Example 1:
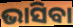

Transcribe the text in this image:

ଭାସିବା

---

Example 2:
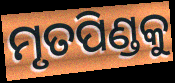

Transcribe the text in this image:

ମୃତପିଣ୍ଡକୁ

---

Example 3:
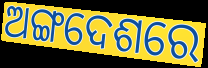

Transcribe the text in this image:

ଅଙ୍ଗଦେଶରେ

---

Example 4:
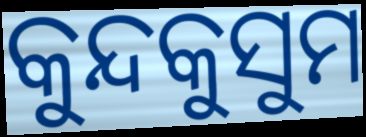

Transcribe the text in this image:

କୁନ୍ଦକୁସୁମ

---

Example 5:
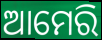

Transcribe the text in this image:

ଆମେରି